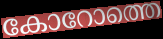
കോറോത്തെ